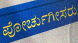
ಪೋರ್ಚುಗೀಸರು